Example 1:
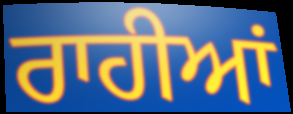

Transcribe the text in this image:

ਰਾਹੀਆਂ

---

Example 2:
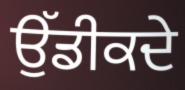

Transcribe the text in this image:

ਉੱਡੀਕਦੇ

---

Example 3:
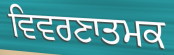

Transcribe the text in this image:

ਵਿਵਰਣਾਤਮਕ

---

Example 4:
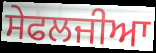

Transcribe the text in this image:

ਸੇਫਲਜੀਆ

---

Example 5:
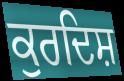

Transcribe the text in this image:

ਕੁਰਦਿਸ਼